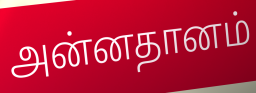
அன்னதானம்